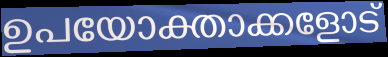
ഉപയോക്താക്കളോട്